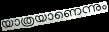
യാത്രയാണെന്നും